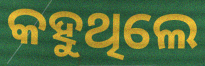
କହୁଥିଲେ